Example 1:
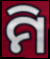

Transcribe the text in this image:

ମି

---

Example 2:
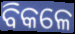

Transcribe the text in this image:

ବିକଳେ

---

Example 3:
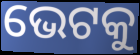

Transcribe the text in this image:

ଭେଟକୁ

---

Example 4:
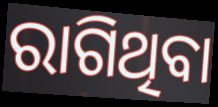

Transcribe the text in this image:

ରାଗିଥିବା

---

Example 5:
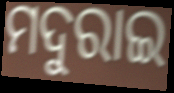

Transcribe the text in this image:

ମଦୁରାଇ